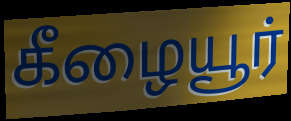
கீழையூர்